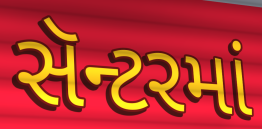
સૅન્ટરમાં